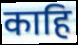
काहि